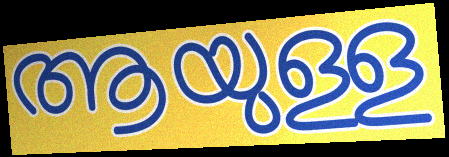
ആയുള്ള